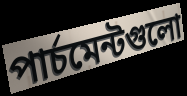
পার্চমেন্টগুলো